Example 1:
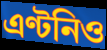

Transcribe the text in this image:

এণ্টনিও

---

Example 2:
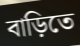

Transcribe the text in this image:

বাড়িতে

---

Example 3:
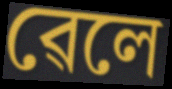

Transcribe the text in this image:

ৱেলে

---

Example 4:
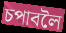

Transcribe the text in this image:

চপাবলৈ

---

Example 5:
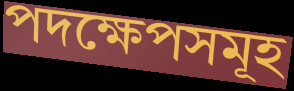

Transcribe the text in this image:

পদক্ষেপসমূহ